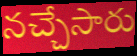
నచ్చేసారు